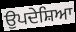
ਉਪਦੇਸ਼ਿਆ